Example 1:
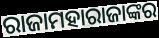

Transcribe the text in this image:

ରାଜାମହାରାଜାଙ୍କର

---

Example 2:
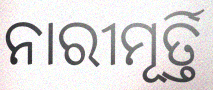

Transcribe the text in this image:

ନାରୀମୂର୍ତ୍ତି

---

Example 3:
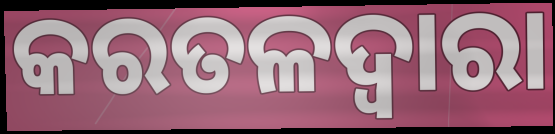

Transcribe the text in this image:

କରତଳଦ୍ୱାରା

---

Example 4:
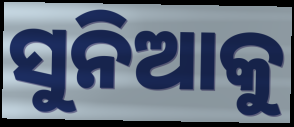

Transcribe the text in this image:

ସୁନିଆକୁ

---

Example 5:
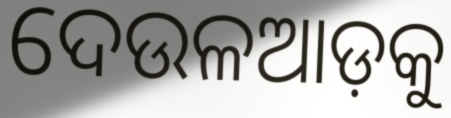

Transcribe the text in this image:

ଦେଉଳଆଡ଼କୁ